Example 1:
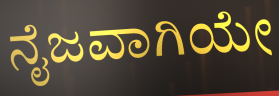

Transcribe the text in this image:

ನೈಜವಾಗಿಯೇ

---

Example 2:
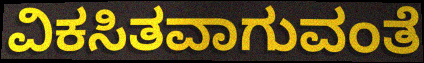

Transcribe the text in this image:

ವಿಕಸಿತವಾಗುವಂತೆ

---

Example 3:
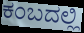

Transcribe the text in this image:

ಕಂಬದಲ್ಲಿ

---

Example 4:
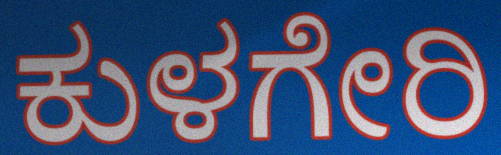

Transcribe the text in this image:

ಕುಳಗೇರಿ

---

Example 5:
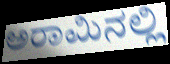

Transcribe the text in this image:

ಅರಾಮಿನಲ್ಲಿ